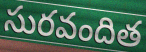
సురవందిత